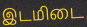
இடமிடை